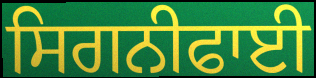
ਸਿਗਨੀਫਾਈ